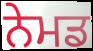
ਨੇਮਡ